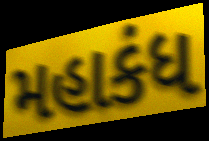
મહાકંધ